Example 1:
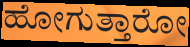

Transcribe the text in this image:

ಹೋಗುತ್ತಾರೋ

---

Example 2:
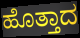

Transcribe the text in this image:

ಹೊತ್ತಾದ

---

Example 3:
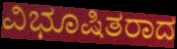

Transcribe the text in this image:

ವಿಭೂಷಿತರಾದ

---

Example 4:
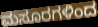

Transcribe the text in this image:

ಮಸೂರಗಳಿಂದ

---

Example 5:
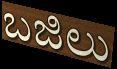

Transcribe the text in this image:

ಬಜಿಲು